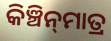
କିଞ୍ଚିନ୍‍ମାତ୍ର